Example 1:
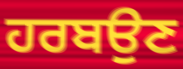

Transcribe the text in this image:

ਹਰਬਉਣ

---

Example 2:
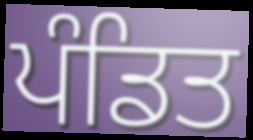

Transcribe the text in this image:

ਪੰਡਿਤ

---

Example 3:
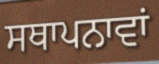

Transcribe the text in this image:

ਸਥਾਪਨਾਵਾਂ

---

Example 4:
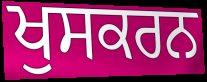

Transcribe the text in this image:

ਖੁਸਕਰਨ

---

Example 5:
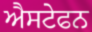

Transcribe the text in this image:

ਐਸਟੇਫਨ